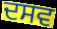
ਦਸਵ